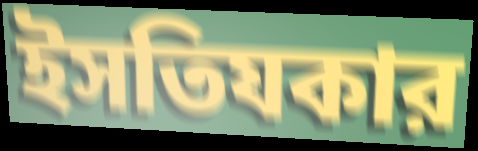
ইসতিযকার